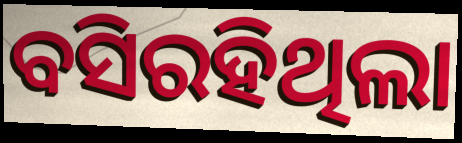
ବସିରହିଥିଲା